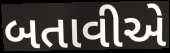
બતાવીએ